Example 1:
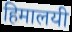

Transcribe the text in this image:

हिमालयी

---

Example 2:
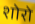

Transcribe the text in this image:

शोरो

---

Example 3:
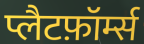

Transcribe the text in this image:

प्लैटफ़ॉर्म्स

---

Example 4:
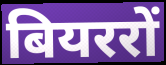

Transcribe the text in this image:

बियररों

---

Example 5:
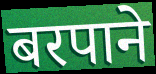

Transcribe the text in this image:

बरपाने